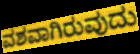
ವಶವಾಗಿರುವುದು